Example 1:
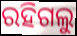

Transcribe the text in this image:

ରହିଗଲୁ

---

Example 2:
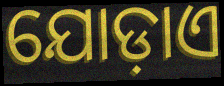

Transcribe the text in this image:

ଯୋଡ଼ାଏ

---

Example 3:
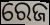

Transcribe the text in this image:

ରେଜ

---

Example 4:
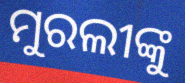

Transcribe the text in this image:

ମୁରଲୀଙ୍କୁ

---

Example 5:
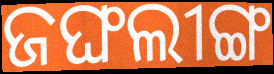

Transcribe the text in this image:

ଜଙ୍ଘଲୀଙ୍ଗ